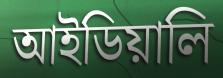
আইডিয়ালি